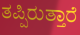
ತಪ್ಪಿರುತ್ತಾರೆ